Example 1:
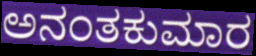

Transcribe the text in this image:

ಅನಂತಕುಮಾರ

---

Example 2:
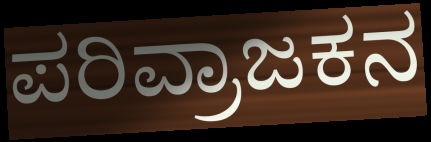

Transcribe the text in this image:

ಪರಿವ್ರಾಜಕನ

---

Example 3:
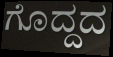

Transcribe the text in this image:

ಗೊದ್ದದ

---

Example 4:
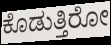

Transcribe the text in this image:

ಕೊಡುತ್ತಿರೋ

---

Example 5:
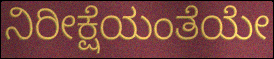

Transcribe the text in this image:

ನಿರೀಕ್ಷೆಯಂತೆಯೇ